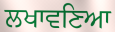
ਲਖਾਵਣਿਆ